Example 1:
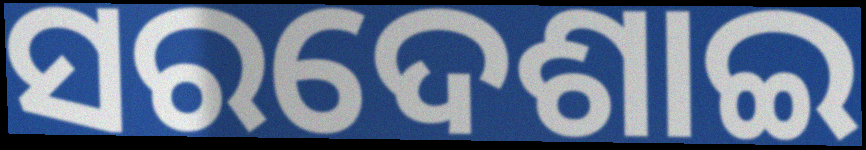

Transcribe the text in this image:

ସରଦେଶାଇ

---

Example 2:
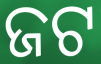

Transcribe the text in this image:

ଜଟ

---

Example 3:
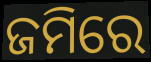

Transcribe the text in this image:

ଜମିରେ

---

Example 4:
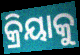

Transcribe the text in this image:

କ୍ରିୟାକୁ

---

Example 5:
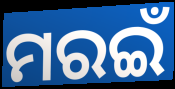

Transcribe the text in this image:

ମରଇଁ